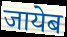
जायेब